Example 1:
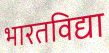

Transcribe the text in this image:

भारतविद्या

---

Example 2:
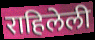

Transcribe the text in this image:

राहिलेली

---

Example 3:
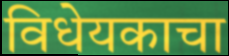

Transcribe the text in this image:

विधेयकाचा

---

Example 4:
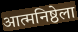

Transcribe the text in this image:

आत्मनिष्ठेला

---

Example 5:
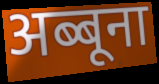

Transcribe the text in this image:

अब्बूना